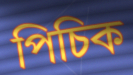
পিচিক